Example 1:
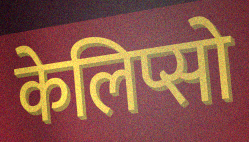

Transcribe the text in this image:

केलिप्सो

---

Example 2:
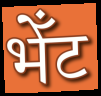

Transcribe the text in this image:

भेँट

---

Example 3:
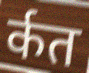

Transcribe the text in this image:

र्कत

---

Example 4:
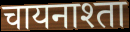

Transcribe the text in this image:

चायनाश्ता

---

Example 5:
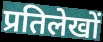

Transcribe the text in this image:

प्रतिलेखों